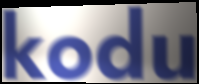
kodu